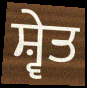
ਸ਼੍ਵੇਤ